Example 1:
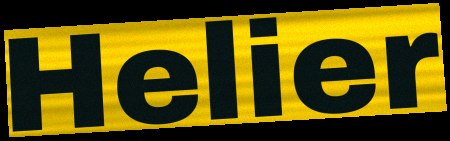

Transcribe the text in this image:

Helier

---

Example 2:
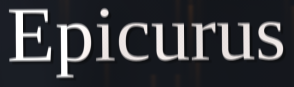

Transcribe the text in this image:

Epicurus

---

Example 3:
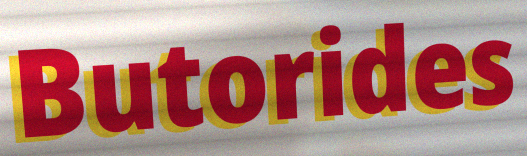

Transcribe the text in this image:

Butorides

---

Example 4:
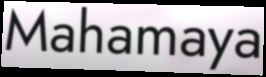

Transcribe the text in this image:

Mahamaya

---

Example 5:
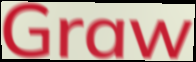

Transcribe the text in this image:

Graw